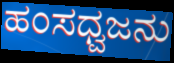
ಹಂಸಧ್ವಜನು